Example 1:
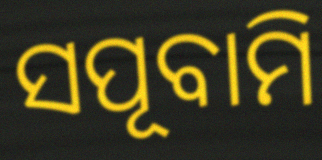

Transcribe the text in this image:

ସପୂବାମି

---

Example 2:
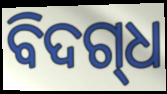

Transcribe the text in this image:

ବିଦଗ୍‍ଧ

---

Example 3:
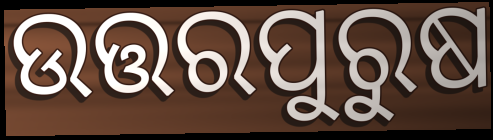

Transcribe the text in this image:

ଉତ୍ତରପୁରୁଷ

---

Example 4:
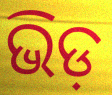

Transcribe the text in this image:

ଭିଡ଼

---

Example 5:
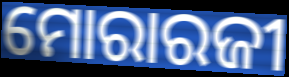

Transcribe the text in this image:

ମୋରାରଜୀ